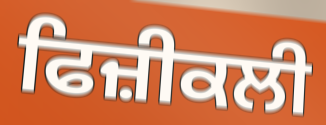
ਫਿਜ਼ੀਕਲੀ